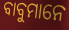
ବାବୁମାନେ